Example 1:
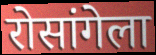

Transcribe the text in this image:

रोसांगेला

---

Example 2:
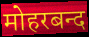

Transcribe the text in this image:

मोहरबन्द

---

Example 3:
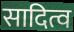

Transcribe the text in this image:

सादित्व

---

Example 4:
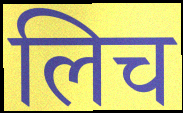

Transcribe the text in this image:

लिच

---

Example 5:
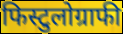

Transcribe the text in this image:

फिस्टुलोग्राफी